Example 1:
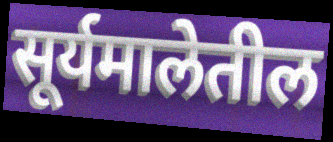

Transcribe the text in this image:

सूर्यमालेतील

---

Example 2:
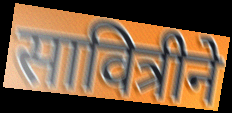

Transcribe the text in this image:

सावित्रीने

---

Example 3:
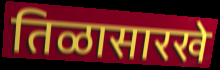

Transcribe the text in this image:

तिळासारखे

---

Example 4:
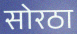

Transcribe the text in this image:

सोरठा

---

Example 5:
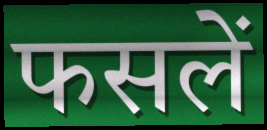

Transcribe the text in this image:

फसलें